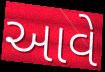
આવે